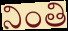
నింతి